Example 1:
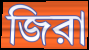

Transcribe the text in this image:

জিরা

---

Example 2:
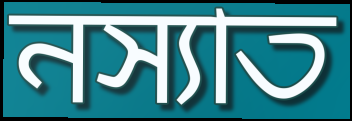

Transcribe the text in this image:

নস্যাত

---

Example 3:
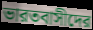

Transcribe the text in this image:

ভারতবাসীদের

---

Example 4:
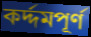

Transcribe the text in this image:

কর্দ্দমপূর্ণ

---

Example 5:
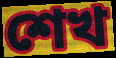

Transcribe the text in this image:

শেখ